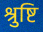
श्रुष्टि